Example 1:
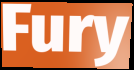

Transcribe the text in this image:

Fury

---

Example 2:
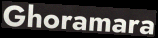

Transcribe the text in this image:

Ghoramara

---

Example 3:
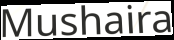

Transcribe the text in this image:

Mushaira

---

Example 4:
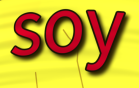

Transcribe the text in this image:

soy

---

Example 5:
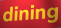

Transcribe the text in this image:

dining